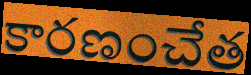
కారణంచేత